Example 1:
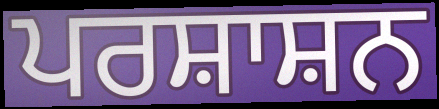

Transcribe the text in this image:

ਪਰਸ਼ਾਸ਼ਨ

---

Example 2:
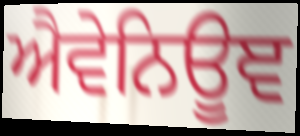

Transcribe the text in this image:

ਐਵੇਨਿਊਞ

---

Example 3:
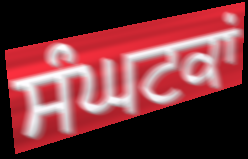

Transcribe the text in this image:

ਸੰਘਟਕਾਂ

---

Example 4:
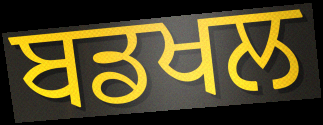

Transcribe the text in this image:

ਬਡਖਲ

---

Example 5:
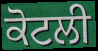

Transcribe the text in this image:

ਕੋਟਲੀ